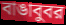
বাঙাবুবর